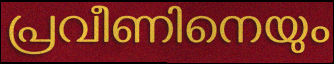
പ്രവീണിനെയും